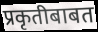
प्रकृतीबाबत